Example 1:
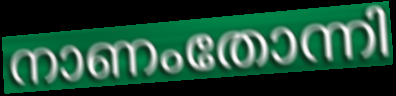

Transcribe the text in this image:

നാണംതോന്നി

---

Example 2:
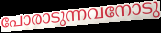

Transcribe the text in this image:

പോരാടുന്നവനോടു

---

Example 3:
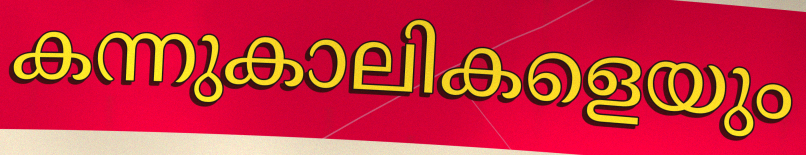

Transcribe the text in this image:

കന്നുകാലികളെയും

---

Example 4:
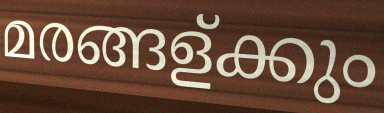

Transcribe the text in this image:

മരങ്ങള്ക്കും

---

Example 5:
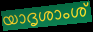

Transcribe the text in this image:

യാദൃശാംശ്